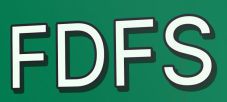
FDFS